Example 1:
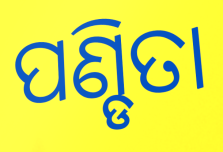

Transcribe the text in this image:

ପଣ୍ଡିତା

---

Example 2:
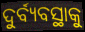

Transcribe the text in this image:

ଦୁର୍ବ୍ୟବସ୍ଥାକୁ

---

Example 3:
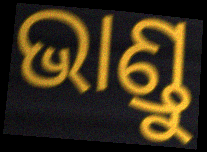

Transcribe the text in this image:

ଭାଣ୍ଡୁ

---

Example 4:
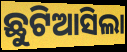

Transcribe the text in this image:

ଛୁଟିଆସିଲା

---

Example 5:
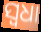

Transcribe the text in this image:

ସ୍ୱଧା